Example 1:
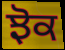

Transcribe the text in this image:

ਝੋਕ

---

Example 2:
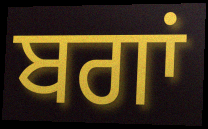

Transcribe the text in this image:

ਬਗਾਂ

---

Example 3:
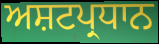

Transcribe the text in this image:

ਅਸ਼ਟਪ੍ਰਧਾਨ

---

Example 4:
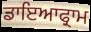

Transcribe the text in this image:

ਡਾਇਆਫ੍ਰਾਮ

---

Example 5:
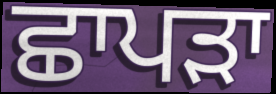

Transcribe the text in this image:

ਛਾਪੜਾ